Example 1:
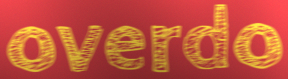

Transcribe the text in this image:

overdo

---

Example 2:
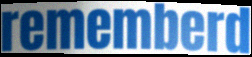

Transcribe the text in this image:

rememberd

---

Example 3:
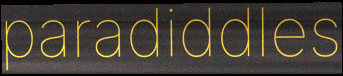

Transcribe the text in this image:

paradiddles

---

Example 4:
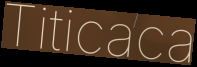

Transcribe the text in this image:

Titicaca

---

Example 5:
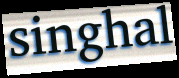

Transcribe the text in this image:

singhal